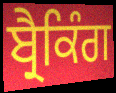
ਬ੍ਰੈਕਿੰਗ